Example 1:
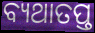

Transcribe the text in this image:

ବ୍ୟଥାତପ୍ତ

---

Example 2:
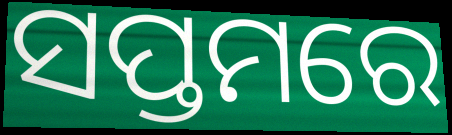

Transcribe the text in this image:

ସପ୍ତମରେ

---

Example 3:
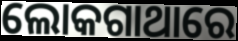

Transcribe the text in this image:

ଲୋକଗାଥାରେ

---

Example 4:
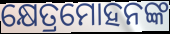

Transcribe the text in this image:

କ୍ଷେତ୍ରମୋହନଙ୍କ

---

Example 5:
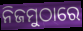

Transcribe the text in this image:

ନିଜମୁଠାରେ